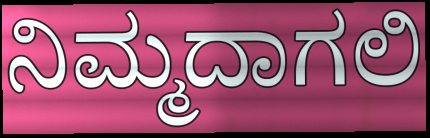
ನಿಮ್ಮದಾಗಲಿ